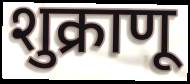
शुक्राणू